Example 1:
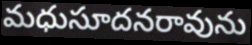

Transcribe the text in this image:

మధుసూదనరావును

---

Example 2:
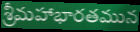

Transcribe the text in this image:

శ్రీమహాభారతమున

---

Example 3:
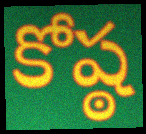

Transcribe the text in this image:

కోష్ఠ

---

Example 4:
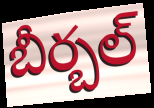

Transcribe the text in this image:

బీర్బల్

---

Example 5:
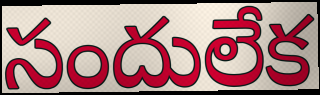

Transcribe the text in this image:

సందులేక